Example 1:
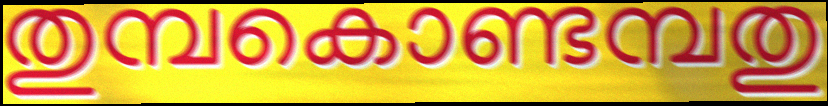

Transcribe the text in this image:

തുമ്പകൊണ്ടമ്പതു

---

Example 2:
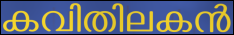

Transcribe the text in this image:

കവിതിലകൻ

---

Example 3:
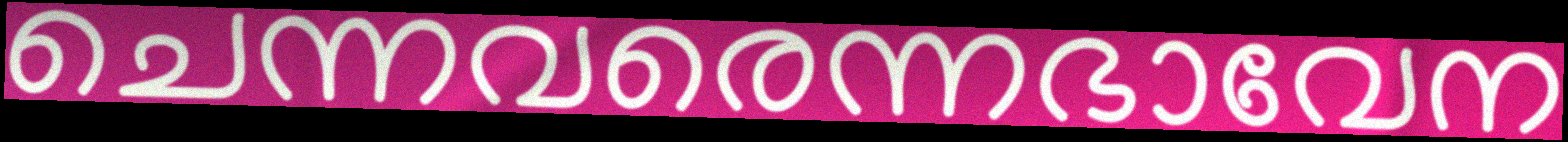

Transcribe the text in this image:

ചെന്നവരെന്നഭാവേന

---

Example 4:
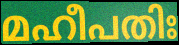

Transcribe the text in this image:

മഹീപതിഃ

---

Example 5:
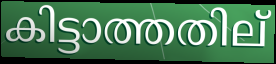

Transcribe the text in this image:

കിട്ടാത്തതില്